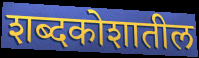
शब्दकोशातील